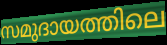
സമുദായത്തിലെ